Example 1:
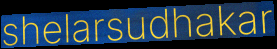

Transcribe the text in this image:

shelarsudhakar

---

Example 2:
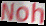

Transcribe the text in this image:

Noh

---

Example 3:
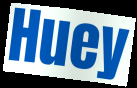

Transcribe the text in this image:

Huey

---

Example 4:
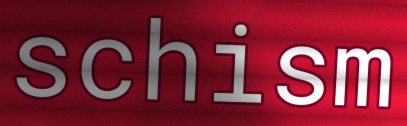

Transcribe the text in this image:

schism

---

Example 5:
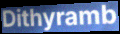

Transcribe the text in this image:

Dithyramb